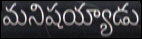
మనిషయ్యాడు